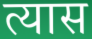
त्यास